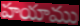
హయాము